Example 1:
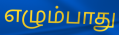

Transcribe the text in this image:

எழும்பாது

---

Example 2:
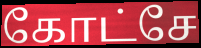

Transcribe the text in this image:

கோட்சே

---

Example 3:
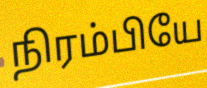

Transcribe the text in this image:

நிரம்பியே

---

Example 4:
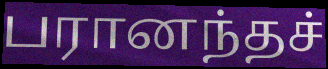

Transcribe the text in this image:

பரானந்தச்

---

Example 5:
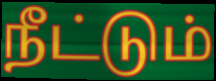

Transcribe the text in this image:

நீட்டும்